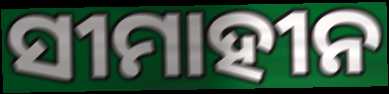
ସୀମାହୀନ